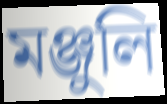
মঞ্জুলি